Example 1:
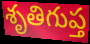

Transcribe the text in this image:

శృతిగుప్త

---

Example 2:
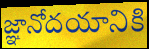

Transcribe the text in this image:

జ్ఞానోదయానికి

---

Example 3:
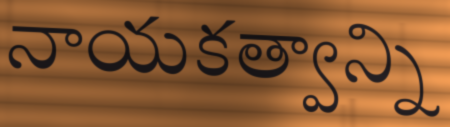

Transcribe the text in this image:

నాయకత్వాన్ని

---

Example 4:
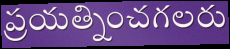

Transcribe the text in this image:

ప్రయత్నించగలరు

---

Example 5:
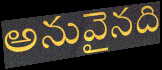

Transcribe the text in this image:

అనువైనది